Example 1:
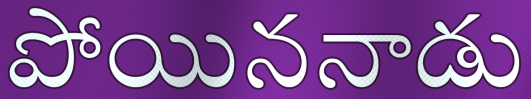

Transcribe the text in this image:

పోయిననాడు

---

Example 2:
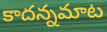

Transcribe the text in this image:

కాదన్నమాట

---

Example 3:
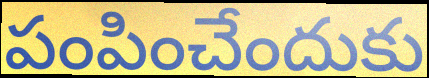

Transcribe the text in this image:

పంపించేందుకు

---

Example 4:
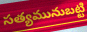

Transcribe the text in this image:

సత్యమునుబట్టి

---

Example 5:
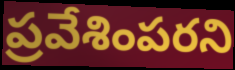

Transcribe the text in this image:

ప్రవేశింపరని